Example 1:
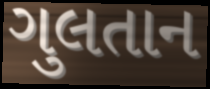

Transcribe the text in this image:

ગુલતાન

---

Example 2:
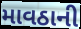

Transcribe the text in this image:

માવઠાની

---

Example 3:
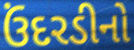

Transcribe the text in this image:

ઉંદરડીનો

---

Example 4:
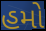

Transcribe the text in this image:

હમો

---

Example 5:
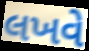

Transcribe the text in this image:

લખવે